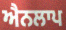
ਐਨਲਾਪ